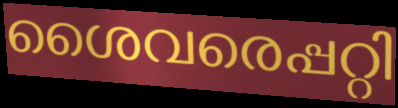
ശൈവരെപ്പറ്റി